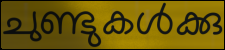
ചുണ്ടുകൾക്കു